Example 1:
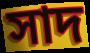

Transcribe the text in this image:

সাদ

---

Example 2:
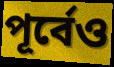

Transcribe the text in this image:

পূৰ্বেও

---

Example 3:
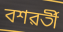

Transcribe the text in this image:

বশৱৰ্তী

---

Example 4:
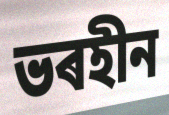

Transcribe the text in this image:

ভৰহীন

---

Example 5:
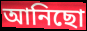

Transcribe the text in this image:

আনিছো